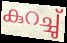
കുറച്ചു്